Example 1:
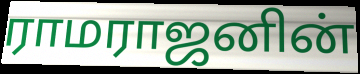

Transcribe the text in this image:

ராமராஜனின்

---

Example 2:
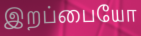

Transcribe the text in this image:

இறப்பையோ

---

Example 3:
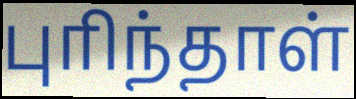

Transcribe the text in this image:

புரிந்தாள்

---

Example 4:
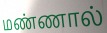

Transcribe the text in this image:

மண்ணால்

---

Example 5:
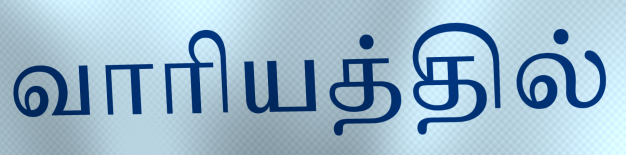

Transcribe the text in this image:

வாரியத்தில்